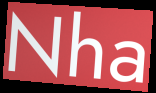
Nha